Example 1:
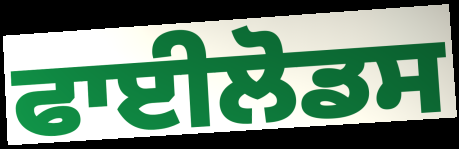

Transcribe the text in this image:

ਫਾਈਲੋਡਸ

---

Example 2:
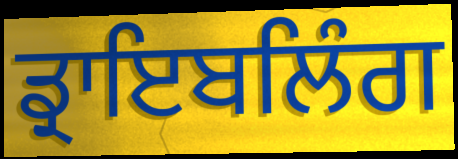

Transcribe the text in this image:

ਡ੍ਰਾਇਬਲਿੰਗ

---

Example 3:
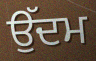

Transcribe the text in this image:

ਉੱਦਮ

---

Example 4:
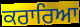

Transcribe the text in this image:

ਕਰਾਰਿਆ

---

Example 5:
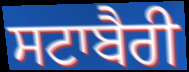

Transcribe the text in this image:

ਸਟਾਬੈਰੀ